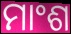
ମାଂଶ